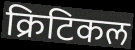
क्रिटिकल